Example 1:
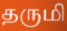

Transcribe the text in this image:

தருமி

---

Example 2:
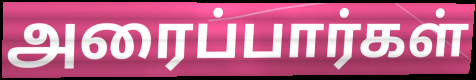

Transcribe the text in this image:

அரைப்பார்கள்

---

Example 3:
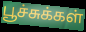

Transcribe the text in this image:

பூச்சுக்கள்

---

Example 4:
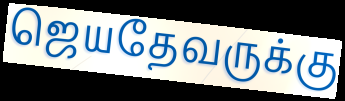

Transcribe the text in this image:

ஜெயதேவருக்கு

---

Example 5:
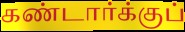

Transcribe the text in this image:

கண்டார்க்குப்